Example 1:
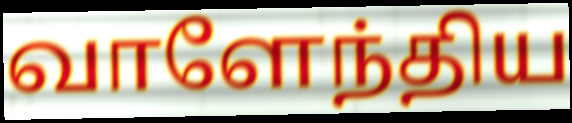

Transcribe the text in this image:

வாளேந்திய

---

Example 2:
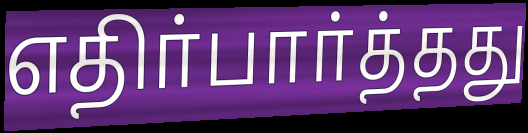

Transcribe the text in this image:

எதிர்பார்த்தது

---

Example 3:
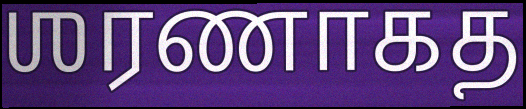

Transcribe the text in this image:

ஶரணாகத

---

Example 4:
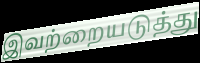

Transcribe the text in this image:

இவற்றையடுத்து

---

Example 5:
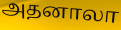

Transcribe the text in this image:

அதனாலா